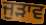
ਜੁੜਾਵ